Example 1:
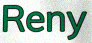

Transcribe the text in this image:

Reny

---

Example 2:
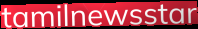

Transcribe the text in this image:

tamilnewsstar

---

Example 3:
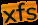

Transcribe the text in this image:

xfs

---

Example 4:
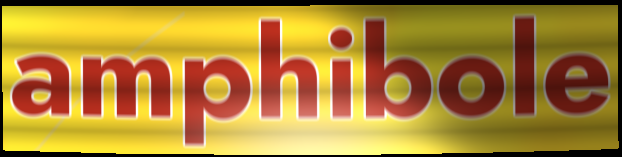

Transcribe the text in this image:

amphibole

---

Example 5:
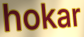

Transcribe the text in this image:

hokar